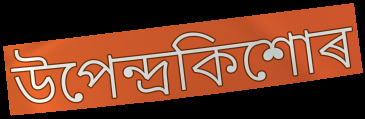
উপেন্দ্ৰকিশোৰ